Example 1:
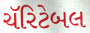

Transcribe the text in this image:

ચૅરિટેબલ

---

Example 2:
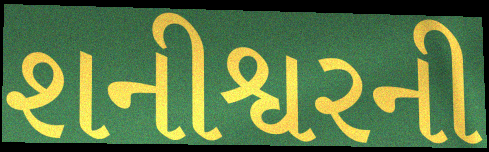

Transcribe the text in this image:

શનીશ્વરની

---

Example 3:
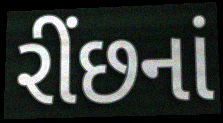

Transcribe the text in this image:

રીંછનાં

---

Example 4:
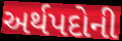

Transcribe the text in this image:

અર્થપદોની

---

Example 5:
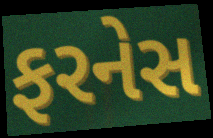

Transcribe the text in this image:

ફરનેસ